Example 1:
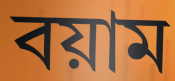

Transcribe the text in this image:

বয়াম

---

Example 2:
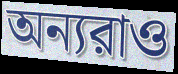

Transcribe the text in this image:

অন্যরাও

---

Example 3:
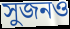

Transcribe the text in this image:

সুজনও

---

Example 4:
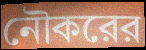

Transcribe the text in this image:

নৌকরের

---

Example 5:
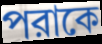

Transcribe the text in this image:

পরাকে